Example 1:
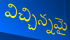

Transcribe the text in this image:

విచ్చిన్నమై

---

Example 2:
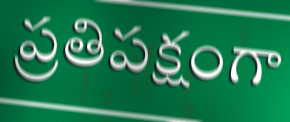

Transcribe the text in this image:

ప్రతిపక్షంగా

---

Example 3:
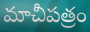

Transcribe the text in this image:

మాచీపత్రం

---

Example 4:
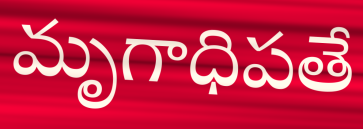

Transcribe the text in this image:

మృగాధిపతే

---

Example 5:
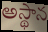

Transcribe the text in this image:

అస్థాన